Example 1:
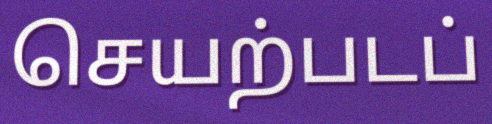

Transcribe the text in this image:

செயற்படப்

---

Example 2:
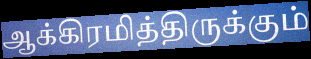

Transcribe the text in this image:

ஆக்கிரமித்திருக்கும்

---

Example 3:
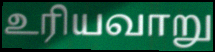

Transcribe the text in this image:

உரியவாறு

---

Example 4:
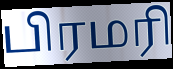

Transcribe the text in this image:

பிரமரி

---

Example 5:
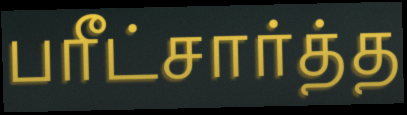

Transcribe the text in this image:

பரீட்சார்த்த